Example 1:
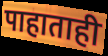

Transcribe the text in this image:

पाहाताही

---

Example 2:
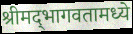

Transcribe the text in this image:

श्रीमद्‌भागवतामध्ये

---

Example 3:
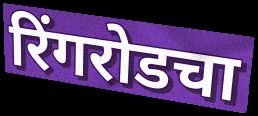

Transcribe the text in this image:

रिंगरोडचा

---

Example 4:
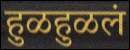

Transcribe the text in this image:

हुळहुळलं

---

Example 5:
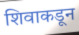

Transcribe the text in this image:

शिवाकडून